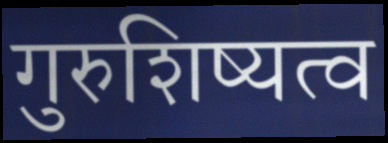
गुरुशिष्यत्व